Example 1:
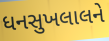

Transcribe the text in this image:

ધનસુખલાલને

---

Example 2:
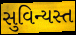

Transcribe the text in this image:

સુવિન્યસ્ત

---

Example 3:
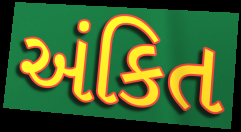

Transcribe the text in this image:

અંકિત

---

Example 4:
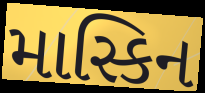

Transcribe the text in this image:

માસ્કિન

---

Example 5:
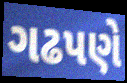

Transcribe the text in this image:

ગઢપણે